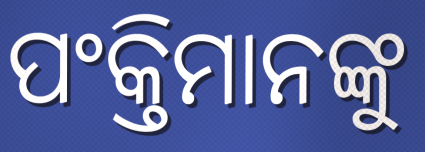
ପଂକ୍ତିମାନଙ୍କୁ